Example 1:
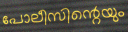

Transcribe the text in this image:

പോലീസിന്റെയും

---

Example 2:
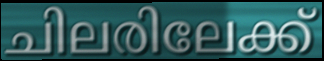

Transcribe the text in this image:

ചിലരിലേക്ക്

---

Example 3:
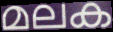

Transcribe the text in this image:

മലക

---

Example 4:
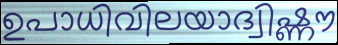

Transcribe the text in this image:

ഉപാധിവിലയാദ്വിഷ്ണൗ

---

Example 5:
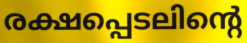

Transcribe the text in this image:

രക്ഷപ്പെടലിന്റെ